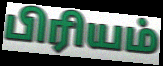
பிரியம்